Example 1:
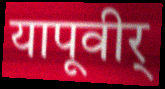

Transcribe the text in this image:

यापूवीर्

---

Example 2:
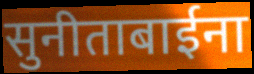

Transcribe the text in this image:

सुनीताबाईना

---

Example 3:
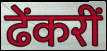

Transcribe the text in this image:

ढेंकरीं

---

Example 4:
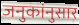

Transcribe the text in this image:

जनुकांनुसार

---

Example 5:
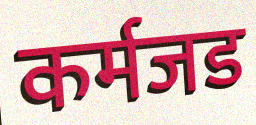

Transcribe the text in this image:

कर्मजड